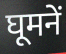
घूमनें